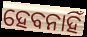
ହେବନାହିଁ